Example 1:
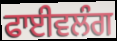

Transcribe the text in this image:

ਫਾਈਵਲੰਗ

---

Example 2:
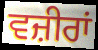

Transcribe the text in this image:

ਵਜ਼ੀਰਾਂ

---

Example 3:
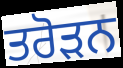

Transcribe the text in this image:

ਤਰੋੜਨ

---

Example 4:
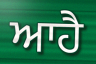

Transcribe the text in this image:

ਆਹੈ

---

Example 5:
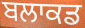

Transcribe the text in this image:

ਬਲਾਕਡ